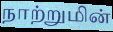
நாற்றுமின்